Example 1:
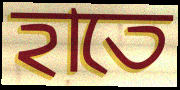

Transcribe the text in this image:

হাতে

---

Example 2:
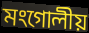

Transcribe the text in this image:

মংগোলীয়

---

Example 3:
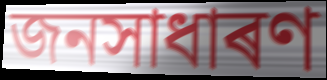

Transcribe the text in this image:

জনসাধাৰণ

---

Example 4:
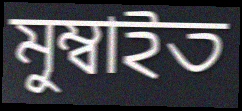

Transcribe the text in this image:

মুম্বাইত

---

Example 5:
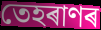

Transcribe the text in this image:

তেহৰাণৰ